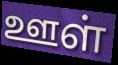
ஊள்